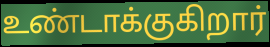
உண்டாக்குகிறார்